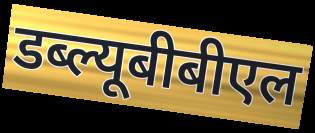
डब्ल्यूबीबीएल